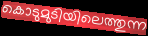
കൊടുമുടിയിലെത്തുന്ന